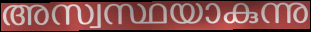
അസ്വസ്ഥയാകുന്നു